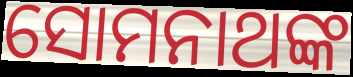
ସୋମନାଥଙ୍କ